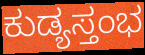
ಕುಡ್ಯಸ್ತಂಭ